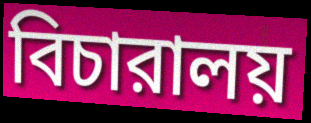
বিচারালয়